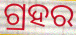
ଗ୍ରହର